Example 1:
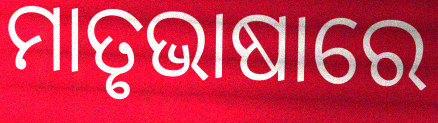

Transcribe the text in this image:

ମାତୃଭାଷାରେ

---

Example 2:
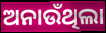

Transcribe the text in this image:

ଅନାଉଁଥିଲା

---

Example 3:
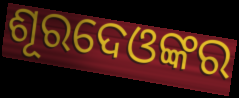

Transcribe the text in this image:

ଶୂରଦେଓଙ୍କର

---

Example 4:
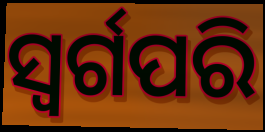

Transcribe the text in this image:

ସ୍ୱର୍ଗପରି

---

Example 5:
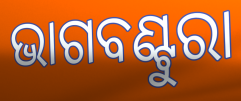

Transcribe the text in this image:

ଭାଗବଣ୍ଟୁରା